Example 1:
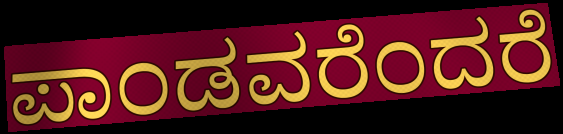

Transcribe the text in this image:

ಪಾಂಡವರೆಂದರೆ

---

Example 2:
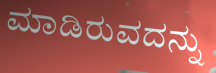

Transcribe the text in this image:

ಮಾಡಿರುವದನ್ನು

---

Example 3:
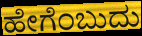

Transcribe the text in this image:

ಹೇಗೆಂಬುದು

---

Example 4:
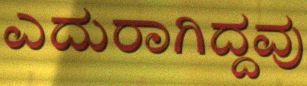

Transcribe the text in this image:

ಎದುರಾಗಿದ್ದವು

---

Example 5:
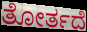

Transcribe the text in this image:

ತೋರ್ತದೆ